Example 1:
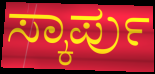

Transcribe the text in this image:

ಸ್ಕಾರ್ಪು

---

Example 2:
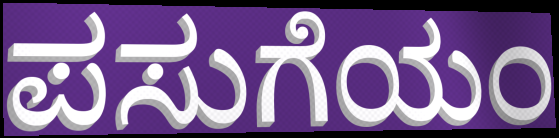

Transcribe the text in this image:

ಪಸುಗೆಯಂ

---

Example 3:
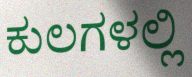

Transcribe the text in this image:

ಕುಲಗಳಲ್ಲಿ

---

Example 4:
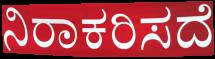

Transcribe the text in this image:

ನಿರಾಕರಿಸದೆ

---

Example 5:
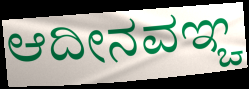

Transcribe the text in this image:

ಆದೀನವಞ್ಚ